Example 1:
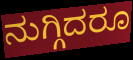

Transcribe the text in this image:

ನುಗ್ಗಿದರೂ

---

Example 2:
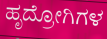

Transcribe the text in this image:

ಹೃದ್ರೋಗಿಗಳ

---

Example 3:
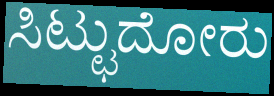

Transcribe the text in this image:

ಸಿಟ್ಟುದೋರು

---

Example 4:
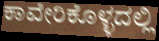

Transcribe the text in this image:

ಕಾವೇರಿಕೊಳ್ಳದಲ್ಲಿ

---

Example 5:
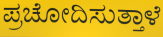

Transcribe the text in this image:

ಪ್ರಚೋದಿಸುತ್ತಾಳೆ